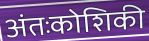
अंतःकोशिकी